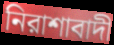
নিরাশাবাদী